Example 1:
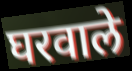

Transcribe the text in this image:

घरवाले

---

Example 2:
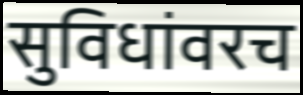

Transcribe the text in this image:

सुविधांवरच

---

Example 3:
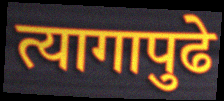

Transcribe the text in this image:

त्यागापुढे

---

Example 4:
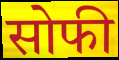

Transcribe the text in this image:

सोफी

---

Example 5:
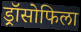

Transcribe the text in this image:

ड्रॉसोफिला